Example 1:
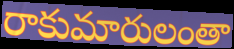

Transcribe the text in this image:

రాకుమారులంతా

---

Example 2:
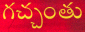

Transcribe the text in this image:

గచ్చంతు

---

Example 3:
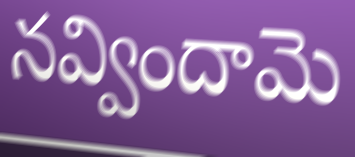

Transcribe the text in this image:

నవ్విందామె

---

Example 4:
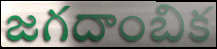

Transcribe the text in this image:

జగదాంబిక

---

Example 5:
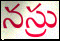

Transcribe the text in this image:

నస్రు